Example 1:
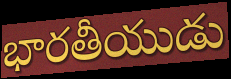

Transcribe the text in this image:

భారతీయుడు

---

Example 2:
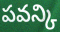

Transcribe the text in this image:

పవన్కి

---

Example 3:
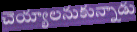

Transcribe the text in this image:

చెయ్యాలనుకున్నాడు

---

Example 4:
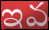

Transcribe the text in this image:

ఇవ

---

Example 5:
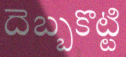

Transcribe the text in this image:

దెబ్బకొట్టి